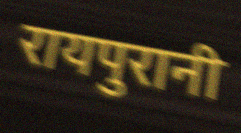
रायपुरानी